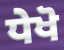
ਧੇਖੋ